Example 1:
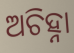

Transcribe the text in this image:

ଅଚିହ୍ନା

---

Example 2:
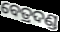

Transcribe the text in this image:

ବେତ୍ରଦଣ୍ଡ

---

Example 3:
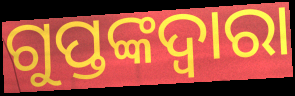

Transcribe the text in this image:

ଗୁପ୍ତଙ୍କଦ୍ୱାରା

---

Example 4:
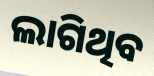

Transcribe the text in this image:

ଲାଗିଥିବ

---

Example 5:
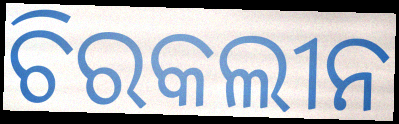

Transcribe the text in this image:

ଚିରକଲୀନ